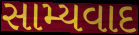
સામ્યવાદ